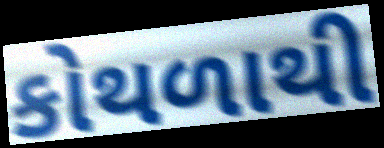
કોથળાથી